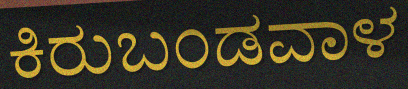
ಕಿರುಬಂಡವಾಳ